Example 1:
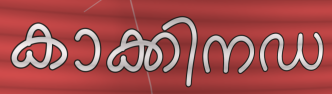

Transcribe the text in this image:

കാക്കിനഡ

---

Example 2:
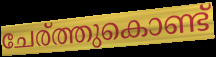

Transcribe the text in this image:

ചേര്ത്തുകൊണ്ട്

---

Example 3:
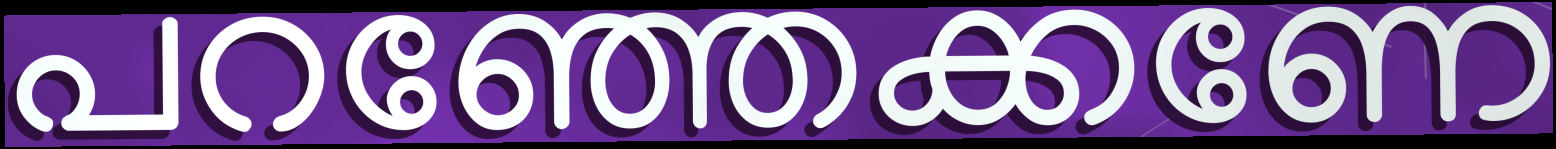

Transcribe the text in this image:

പറഞ്ഞേക്കണേ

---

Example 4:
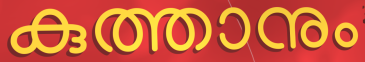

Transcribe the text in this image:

കുത്താനും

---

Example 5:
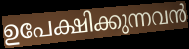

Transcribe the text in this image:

ഉപേക്ഷിക്കുന്നവൻ